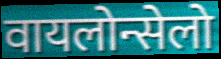
वायलोन्सेलो